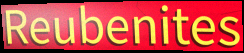
Reubenites